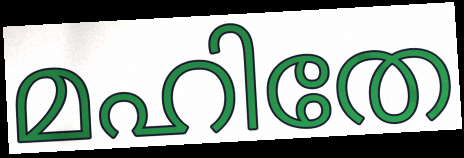
മഹിതേ